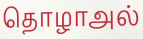
தொழாஅல்